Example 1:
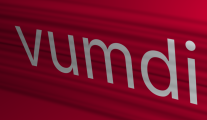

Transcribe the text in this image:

vumdi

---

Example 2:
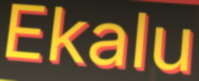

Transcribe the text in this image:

Ekalu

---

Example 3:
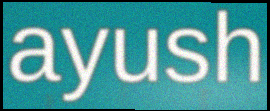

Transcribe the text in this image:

ayush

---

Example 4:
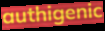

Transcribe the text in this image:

authigenic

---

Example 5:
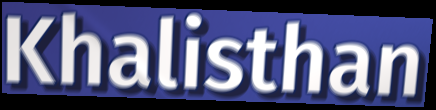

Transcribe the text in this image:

Khalisthan